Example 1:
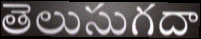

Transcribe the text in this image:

తెలుసుగదా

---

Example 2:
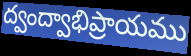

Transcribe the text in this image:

ద్వంద్వాభిప్రాయము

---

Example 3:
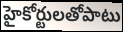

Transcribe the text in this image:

హైకోర్టులతోపాటు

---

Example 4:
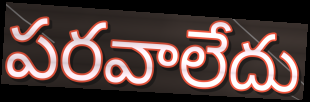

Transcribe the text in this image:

పరవాలేదు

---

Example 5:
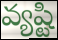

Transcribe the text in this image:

వ్యష్టి